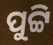
ପୁଟ୍ଟି